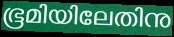
ഭൂമിയിലേതിനു